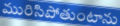
మురిసిపోతుంటాను